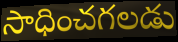
సాధించగలడు